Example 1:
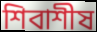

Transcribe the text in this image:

শিবাশীষ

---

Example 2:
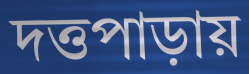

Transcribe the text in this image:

দত্তপাড়ায়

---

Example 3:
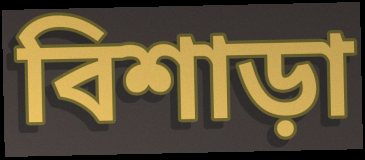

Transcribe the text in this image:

বিশাড়া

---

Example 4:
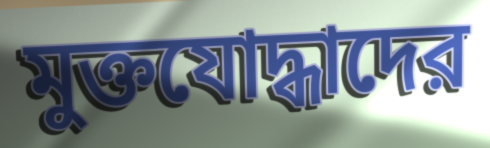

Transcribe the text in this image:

মুক্তযোদ্ধাদের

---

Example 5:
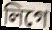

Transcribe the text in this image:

লিগে